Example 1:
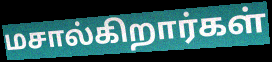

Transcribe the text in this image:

மசால்கிறார்கள்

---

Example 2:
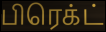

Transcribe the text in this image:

பிரெக்ட்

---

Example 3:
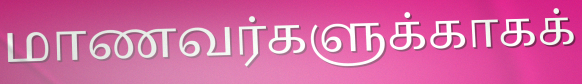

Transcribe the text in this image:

மாணவர்களுக்காகக்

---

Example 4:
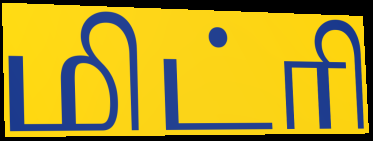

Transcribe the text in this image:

மிட்ரி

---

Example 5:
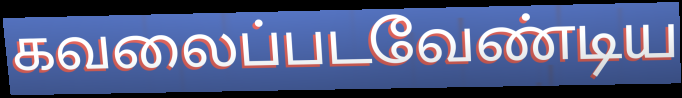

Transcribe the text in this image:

கவலைப்படவேண்டிய